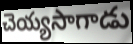
చెయ్యసాగాడు